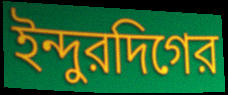
ইন্দুরদিগের